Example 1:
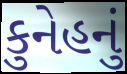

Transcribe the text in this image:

કુનેહનું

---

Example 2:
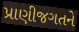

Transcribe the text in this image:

પ્રાણીજગતને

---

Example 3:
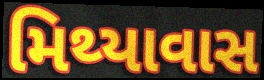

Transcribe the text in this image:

મિથ્યાવાસ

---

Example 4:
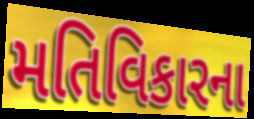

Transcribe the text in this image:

મતિવિકારના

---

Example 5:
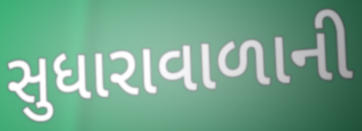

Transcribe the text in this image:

સુધારાવાળાની